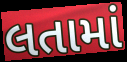
લતામાં